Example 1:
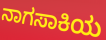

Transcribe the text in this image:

ನಾಗಸಾಕಿಯ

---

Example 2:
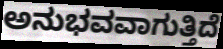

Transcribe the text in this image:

ಅನುಭವವಾಗುತ್ತಿದೆ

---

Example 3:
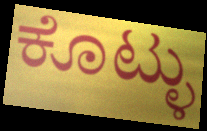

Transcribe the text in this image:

ಕೊಟ್ಳು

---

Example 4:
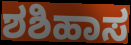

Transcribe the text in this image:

ಶಶಿಹಾಸ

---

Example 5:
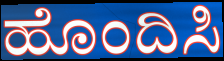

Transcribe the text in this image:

ಹೊಂದಿಸಿ